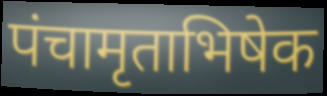
पंचामृताभिषेक